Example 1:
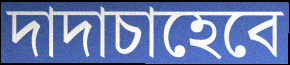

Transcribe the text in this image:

দাদাচাহেবে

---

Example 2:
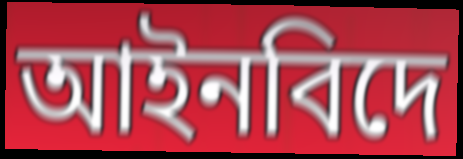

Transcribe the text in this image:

আইনবিদে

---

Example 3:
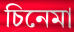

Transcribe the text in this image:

চিনেমা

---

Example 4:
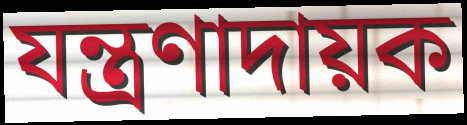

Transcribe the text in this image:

যন্ত্ৰণাদায়ক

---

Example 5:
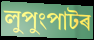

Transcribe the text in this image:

লুপুংপাটৰ